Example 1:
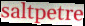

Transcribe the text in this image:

saltpetre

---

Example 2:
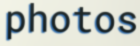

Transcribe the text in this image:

photos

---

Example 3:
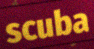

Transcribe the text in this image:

scuba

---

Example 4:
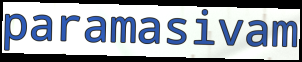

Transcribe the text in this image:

paramasivam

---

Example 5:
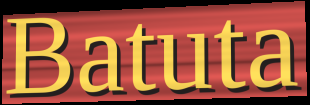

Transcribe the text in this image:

Batuta